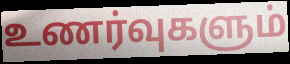
உணர்வுகளும்